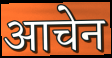
आचेन